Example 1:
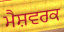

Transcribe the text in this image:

ਮੈਸ਼ਵਰਕ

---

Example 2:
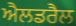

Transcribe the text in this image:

ਐਲਡਰੈਲ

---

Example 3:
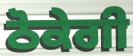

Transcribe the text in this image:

ਠੋਕੇਗੀ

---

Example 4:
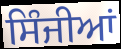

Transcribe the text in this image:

ਸਿੰਜੀਆਂ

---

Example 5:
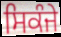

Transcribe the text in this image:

ਸਿਕੰਜੇ